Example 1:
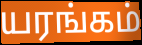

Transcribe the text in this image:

யரங்கம்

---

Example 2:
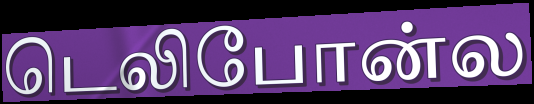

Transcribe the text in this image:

டெலிபோன்ல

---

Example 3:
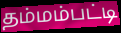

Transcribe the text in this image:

தம்மம்பட்டி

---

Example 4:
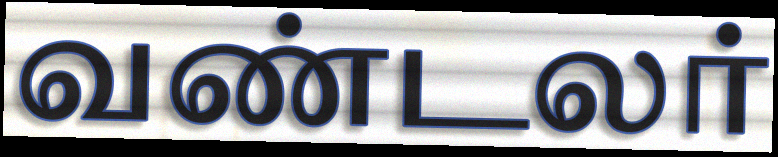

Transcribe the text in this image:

வண்டலர்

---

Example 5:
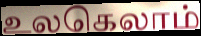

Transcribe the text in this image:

உலகெலாம்